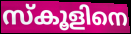
സ്കൂളിനെ